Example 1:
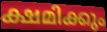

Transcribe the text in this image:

ക്ഷമിക്കും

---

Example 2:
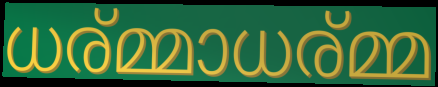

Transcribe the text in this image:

ധര്മ്മാധര്മ്മ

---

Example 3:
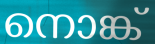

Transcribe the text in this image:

നൊങ്ക്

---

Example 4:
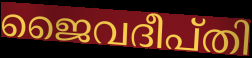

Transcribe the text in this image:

ജൈവദീപ്തി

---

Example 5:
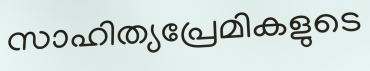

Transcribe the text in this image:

സാഹിത്യപ്രേമികളുടെ